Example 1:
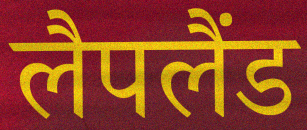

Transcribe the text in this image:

लैपलैंड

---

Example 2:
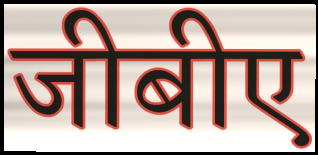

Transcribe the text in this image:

जीबीए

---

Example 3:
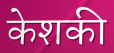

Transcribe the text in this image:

केशकी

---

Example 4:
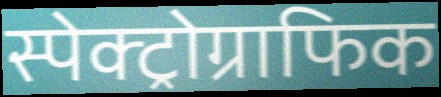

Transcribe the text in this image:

स्पेक्ट्रोग्राफिक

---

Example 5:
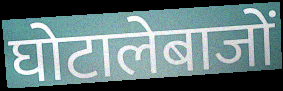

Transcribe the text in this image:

घोटालेबाजों